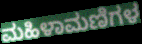
ಮಹಿಳಾಮಣಿಗಳ